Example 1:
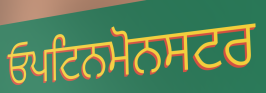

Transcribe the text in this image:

ਓਪਟਿਨਮੋਨਸਟਰ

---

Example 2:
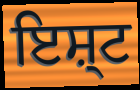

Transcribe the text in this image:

ਇਸ਼੍ਟ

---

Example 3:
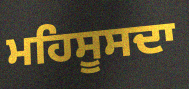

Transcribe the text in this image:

ਮਹਿਸੂਸਦਾ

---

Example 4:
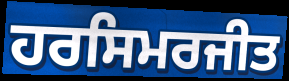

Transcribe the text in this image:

ਹਰਸਿਮਰਜੀਤ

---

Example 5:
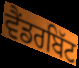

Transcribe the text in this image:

ਵੈਂਡਰਬਿੱਟ